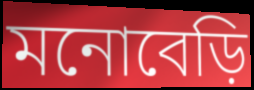
মনোবেড়ি